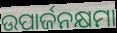
ଉପାର୍ଜନକ୍ଷମା